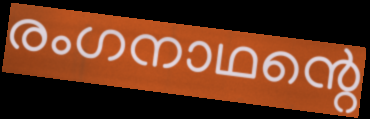
രംഗനാഥന്റെ